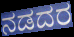
ನಡದರ